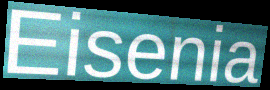
Eisenia